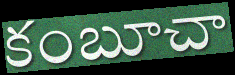
కంబూచా